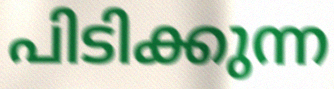
പിടിക്കുന്ന